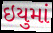
ઇયુમાં